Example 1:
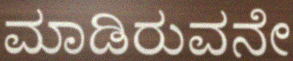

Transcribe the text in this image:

ಮಾಡಿರುವನೇ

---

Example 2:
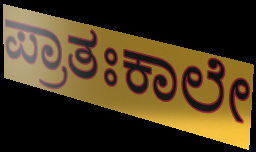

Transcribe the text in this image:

ಪ್ರಾತಃಕಾಲೇ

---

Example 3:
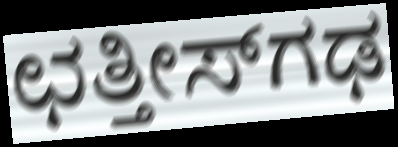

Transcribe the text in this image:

ಛತ್ತೀಸ್‌ಗಢ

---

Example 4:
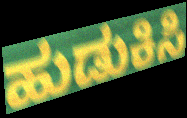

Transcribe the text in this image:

ಹುಡುಕಿಸಿ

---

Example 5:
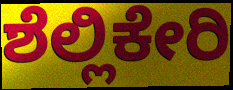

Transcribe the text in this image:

ಶೆಲ್ಲಿಕೇರಿ